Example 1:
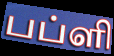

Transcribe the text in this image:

பப்ளி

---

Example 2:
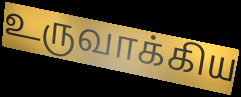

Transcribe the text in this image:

உருவாக்கிய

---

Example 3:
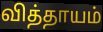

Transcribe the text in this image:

வித்தாயம்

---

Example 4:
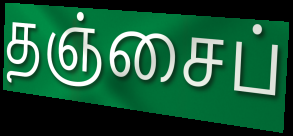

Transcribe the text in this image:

தஞ்சைப்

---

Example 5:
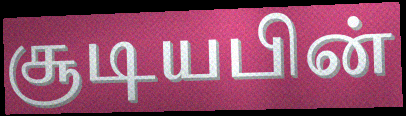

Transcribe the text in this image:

சூடியபின்